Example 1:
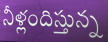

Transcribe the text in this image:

నీళ్లందిస్తున్న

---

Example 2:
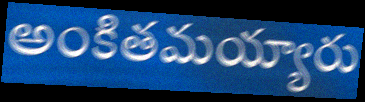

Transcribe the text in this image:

అంకితమయ్యారు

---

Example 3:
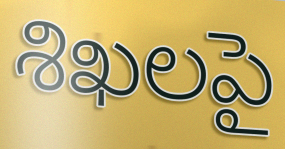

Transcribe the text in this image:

శిఖలపై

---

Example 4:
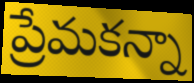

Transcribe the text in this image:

ప్రేమకన్నా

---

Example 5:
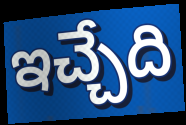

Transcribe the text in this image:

ఇచ్చేది